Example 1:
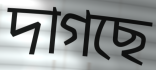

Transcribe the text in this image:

দাগছে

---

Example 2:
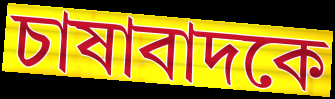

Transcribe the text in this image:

চাষাবাদকে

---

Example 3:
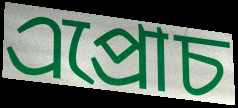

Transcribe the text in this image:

এপ্রোচ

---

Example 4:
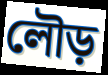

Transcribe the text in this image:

লৌড়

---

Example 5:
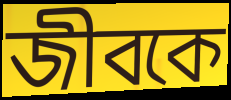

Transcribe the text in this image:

জীবকে